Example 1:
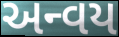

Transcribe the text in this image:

અન્વય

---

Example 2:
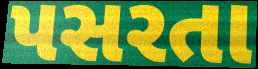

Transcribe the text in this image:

પસરતા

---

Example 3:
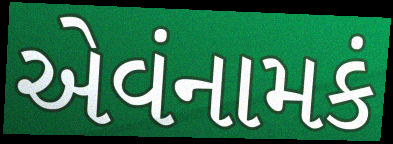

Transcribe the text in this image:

એવંનામકં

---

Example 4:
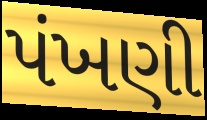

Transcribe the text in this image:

પંખણી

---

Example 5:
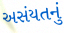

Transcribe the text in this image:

અસંયતનું